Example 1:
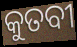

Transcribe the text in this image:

କୁତବୀ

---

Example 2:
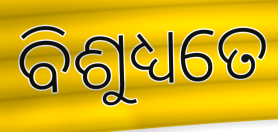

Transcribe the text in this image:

ବିଶୁଧ୍ୟତେ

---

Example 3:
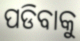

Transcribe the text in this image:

ପଡିବାକୁ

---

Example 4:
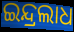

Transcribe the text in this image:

ଇନ୍ଦ୍ରଲାଧ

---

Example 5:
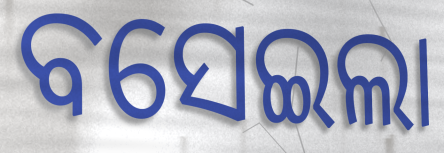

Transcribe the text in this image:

ବସେଇଲା